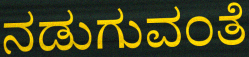
ನಡುಗುವಂತೆ